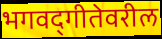
भगवद्‌गीतेवरील